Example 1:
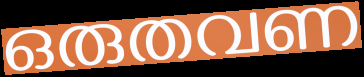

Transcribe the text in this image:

ഒരുതവണ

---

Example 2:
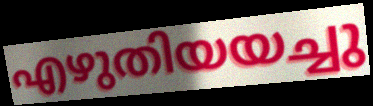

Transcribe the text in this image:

എഴുതിയയച്ചു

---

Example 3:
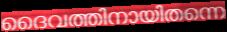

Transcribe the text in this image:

ദൈവത്തിനായിതന്നെ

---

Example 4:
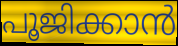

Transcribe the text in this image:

പൂജിക്കാൻ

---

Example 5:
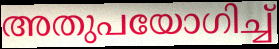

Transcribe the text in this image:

അതുപയോഗിച്ച്